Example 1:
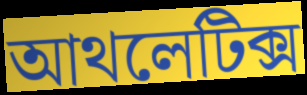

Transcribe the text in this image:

আথলেটিক্স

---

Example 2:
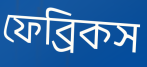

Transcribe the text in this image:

ফেব্রিকস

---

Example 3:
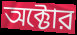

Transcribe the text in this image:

অক্টোর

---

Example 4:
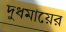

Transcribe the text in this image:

দুধমায়ের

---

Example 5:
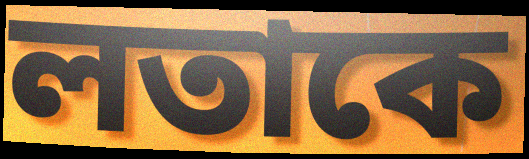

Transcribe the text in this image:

লতাকে